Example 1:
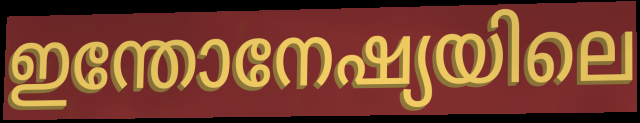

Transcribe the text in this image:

ഇന്തോനേഷ്യയിലെ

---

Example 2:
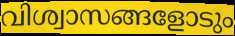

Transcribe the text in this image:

വിശ്വാസങ്ങളോടും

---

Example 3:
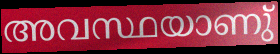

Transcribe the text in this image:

അവസ്ഥയാണു്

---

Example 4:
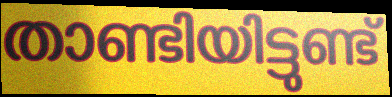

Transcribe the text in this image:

താണ്ടിയിട്ടുണ്ട്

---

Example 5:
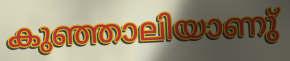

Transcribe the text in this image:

കുഞ്ഞാലിയാണു്